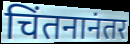
चिंतनानंतर